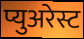
प्युअरेस्ट